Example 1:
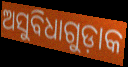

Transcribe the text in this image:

ଅସୁବିଧାଗୁଡ଼ାକ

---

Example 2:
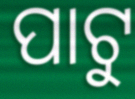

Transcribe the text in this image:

ପାଟୁ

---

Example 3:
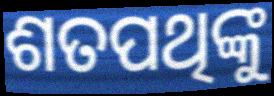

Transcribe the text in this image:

ଶତପଥିଙ୍କୁ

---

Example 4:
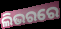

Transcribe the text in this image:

ଲିଭରରେ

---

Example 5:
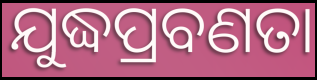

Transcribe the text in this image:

ଯୁଦ୍ଧପ୍ରବଣତା